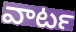
వాటర్‍